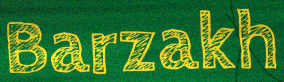
Barzakh